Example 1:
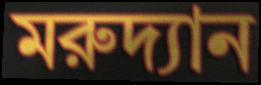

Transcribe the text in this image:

মরুদ্যান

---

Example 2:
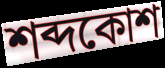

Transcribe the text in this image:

শব্দকোশ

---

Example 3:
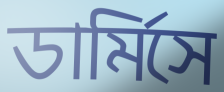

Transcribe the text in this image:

ডার্মিসে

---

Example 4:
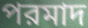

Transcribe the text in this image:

পরমাদ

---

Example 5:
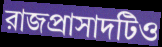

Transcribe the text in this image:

রাজপ্রাসাদটিও